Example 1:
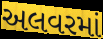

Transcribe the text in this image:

અલવરમાં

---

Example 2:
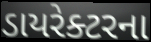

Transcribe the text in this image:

ડાયરેક્ટરના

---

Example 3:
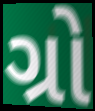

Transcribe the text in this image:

ગ્રો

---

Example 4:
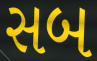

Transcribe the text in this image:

સબ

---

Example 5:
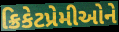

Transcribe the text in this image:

ક્રિકેટપ્રેમીઓને